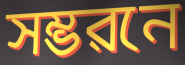
সম্ভৱনে